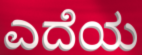
ಎದೆಯ